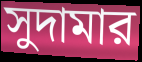
সুদামার